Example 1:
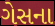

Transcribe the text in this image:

ગેસના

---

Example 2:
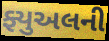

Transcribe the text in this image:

ફ્યુઅલની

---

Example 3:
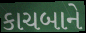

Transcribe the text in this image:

કાચબાને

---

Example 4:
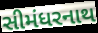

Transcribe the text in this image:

સીમંધરનાથ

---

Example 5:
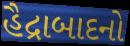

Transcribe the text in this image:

હૈદ્રાબાદનો